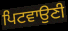
ਪਿਟਵਾਉਣੀ